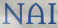
NAI